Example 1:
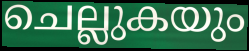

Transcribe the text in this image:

ചെല്ലുകയും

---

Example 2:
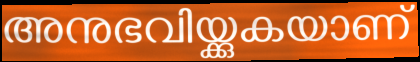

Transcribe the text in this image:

അനുഭവിയ്ക്കുകയാണ്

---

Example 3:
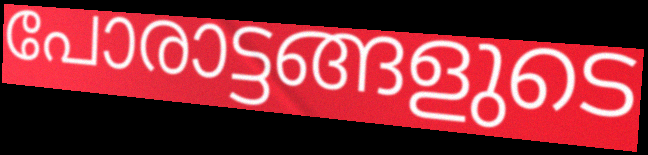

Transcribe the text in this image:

പോരാട്ടങ്ങളുടെ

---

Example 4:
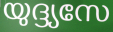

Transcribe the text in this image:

യുദ്ദ്യസേ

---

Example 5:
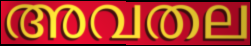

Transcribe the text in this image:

അവതല